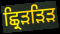
ਛ੍ਰਿੜੜਿੜ